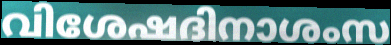
വിശേഷദിനാശംസ